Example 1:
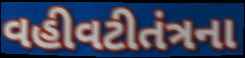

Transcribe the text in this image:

વહીવટીતંત્રના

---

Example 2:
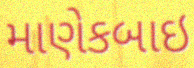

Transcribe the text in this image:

માણેકબાઇ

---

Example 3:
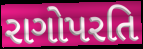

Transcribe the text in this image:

રાગોપરતિ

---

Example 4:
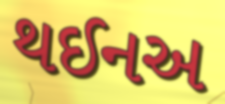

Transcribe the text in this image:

થઈનઅ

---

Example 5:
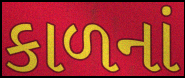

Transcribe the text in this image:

કાળનાં